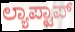
ಲ್ಯಾಪ್ಟಾಪ್